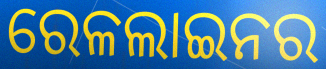
ରେଳଲାଇନର